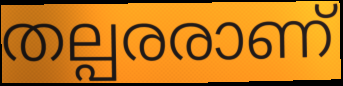
തല്പരരാണ്